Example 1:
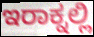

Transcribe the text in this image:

ಇರಾಕ್ನಲ್ಲಿ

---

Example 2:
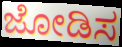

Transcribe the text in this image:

ಜೋಡಿಸ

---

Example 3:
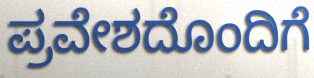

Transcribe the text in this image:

ಪ್ರವೇಶದೊಂದಿಗೆ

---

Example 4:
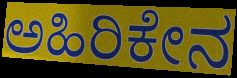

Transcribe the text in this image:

ಅಹಿರಿಕೇನ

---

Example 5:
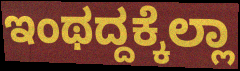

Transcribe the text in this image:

ಇಂಥದ್ದಕ್ಕೆಲ್ಲಾ